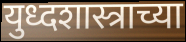
युध्दशास्त्राच्या